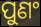
ପୁଣଂ